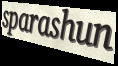
sparashun